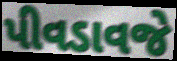
પીવડાવજે